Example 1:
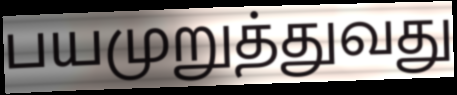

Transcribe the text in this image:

பயமுறுத்துவது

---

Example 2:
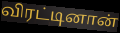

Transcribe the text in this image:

விரட்டினான்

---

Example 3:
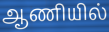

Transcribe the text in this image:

ஆணியில்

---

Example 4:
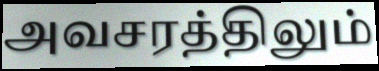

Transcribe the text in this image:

அவசரத்திலும்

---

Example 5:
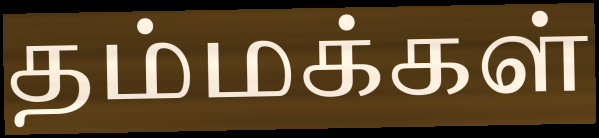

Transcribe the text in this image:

தம்மக்கள்